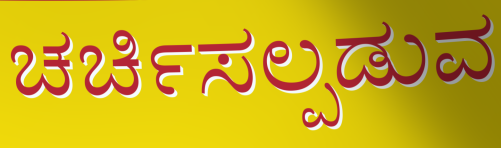
ಚರ್ಚಿಸಲ್ಪಡುವ